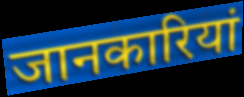
जानकारियां